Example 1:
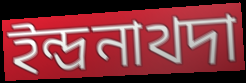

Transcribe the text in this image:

ইন্দ্রনাথদা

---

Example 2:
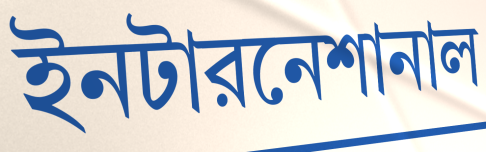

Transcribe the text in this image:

ইনটারনেশানাল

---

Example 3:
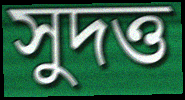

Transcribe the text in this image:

সুদত্ত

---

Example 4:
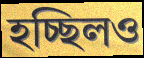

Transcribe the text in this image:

হচ্ছিলও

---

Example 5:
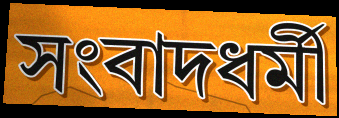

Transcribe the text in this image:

সংবাদধর্মী